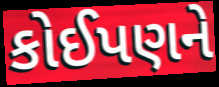
કોઈપણને